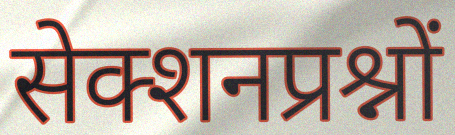
सेक्शनप्रश्नों